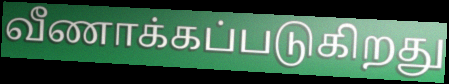
வீணாக்கப்படுகிறது